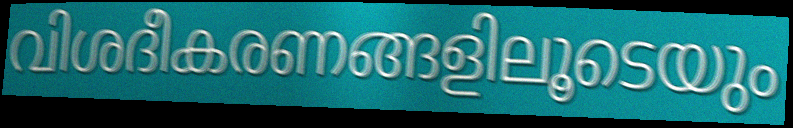
വിശദീകരണങ്ങളിലൂടെയും